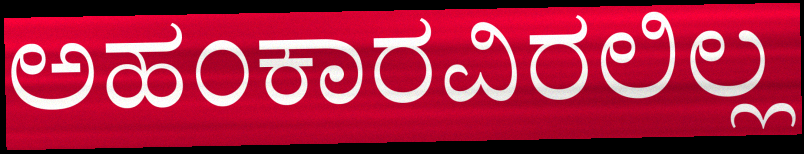
ಅಹಂಕಾರವಿರಲಿಲ್ಲ